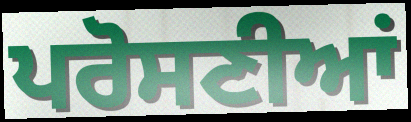
ਪਰੋਸਣੀਆਂ